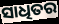
ସାଧିତର